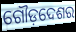
ଗୌଡ଼ଦେଶର